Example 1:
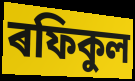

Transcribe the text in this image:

ৰফিকুল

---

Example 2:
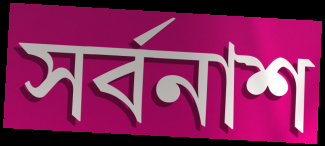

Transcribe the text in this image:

সৰ্বনাশ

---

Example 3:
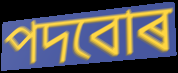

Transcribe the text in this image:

পদবোৰ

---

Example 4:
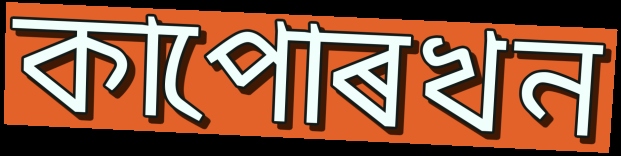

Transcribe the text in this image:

কাপোৰখন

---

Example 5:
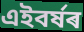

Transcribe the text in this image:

এইবৰ্ষৰ